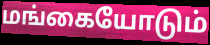
மங்கையோடும்